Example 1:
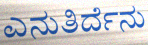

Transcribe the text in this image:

ಎನುತಿರ್ದೆನು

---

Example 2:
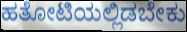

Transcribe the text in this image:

ಹತೋಟಿಯಲ್ಲಿಡಬೇಕು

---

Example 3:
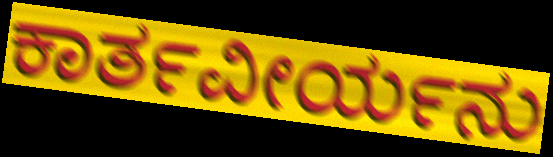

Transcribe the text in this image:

ಕಾರ್ತವೀರ್ಯನು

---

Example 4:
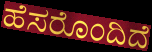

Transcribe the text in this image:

ಹೆಸರೊಂದಿದೆ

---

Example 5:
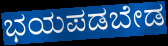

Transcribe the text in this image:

ಭಯಪಡಬೇಡ